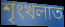
শৃংখলাত